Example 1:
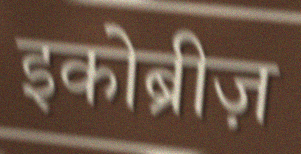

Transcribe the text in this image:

इकोब्रीज़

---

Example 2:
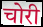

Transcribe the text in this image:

चोरी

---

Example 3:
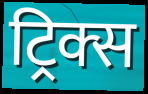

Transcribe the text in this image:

ट्रिक्‍स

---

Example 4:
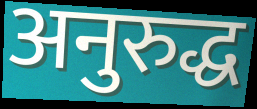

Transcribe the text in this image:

अनुरुद्ध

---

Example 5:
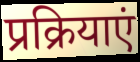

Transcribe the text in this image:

प्रक्रियाएं